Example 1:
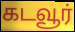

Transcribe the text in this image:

கடவூர்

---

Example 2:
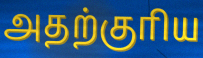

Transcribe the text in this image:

அதற்குரிய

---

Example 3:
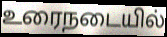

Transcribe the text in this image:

உரைநடையில்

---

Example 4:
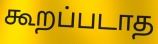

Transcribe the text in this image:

கூறப்படாத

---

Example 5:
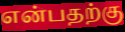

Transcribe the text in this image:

என்பதற்கு